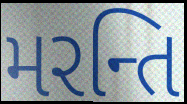
મરન્તિ